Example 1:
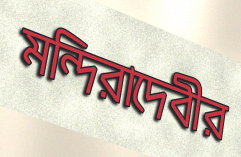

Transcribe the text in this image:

মন্দিরাদেবীর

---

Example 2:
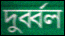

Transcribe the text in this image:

দুর্ব্বল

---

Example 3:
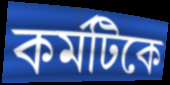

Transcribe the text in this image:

কর্মটিকে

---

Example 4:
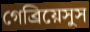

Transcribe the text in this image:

গেব্রিয়েসুস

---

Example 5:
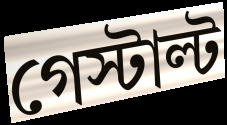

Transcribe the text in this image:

গেস্টাল্ট